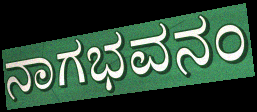
ನಾಗಭವನಂ